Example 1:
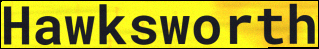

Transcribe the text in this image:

Hawksworth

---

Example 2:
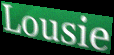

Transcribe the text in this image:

Lousie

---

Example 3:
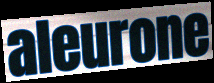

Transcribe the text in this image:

aleurone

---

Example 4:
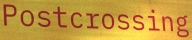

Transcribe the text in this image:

Postcrossing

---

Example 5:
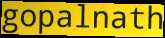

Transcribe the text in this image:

gopalnath